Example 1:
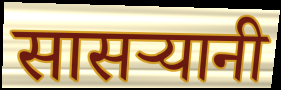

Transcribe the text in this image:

सासऱ्यानी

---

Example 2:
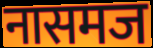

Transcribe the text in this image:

नासमज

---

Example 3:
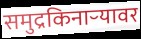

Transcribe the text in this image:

समुद्रकिनाऱ्यावर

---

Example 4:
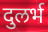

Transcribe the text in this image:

दुलर्भ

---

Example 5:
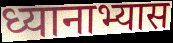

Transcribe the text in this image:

ध्यानाभ्यास